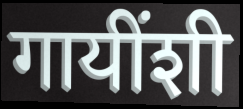
गायींशी